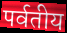
पर्वतीय